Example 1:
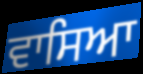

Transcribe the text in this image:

ਵਾਸਿਆ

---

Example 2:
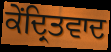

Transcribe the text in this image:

ਕੇਂਦ੍ਰਿਤਵਾਦ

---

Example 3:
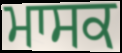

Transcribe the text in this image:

ਮਾਸਕ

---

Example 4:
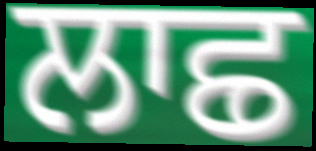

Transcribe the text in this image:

ਲਾਛ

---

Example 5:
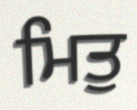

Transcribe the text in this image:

ਮਿਤੁ